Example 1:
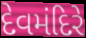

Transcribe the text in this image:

દેવમંદિરે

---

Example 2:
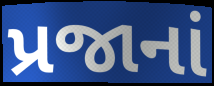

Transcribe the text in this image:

પ્રજાનાં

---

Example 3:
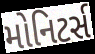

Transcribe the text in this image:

મોનિટર્સ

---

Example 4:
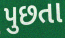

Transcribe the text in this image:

પુછતા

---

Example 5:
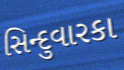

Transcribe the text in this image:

સિન્દુવારકા